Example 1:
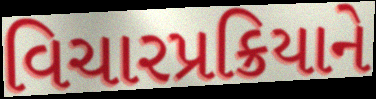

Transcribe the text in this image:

વિચારપ્રક્રિયાને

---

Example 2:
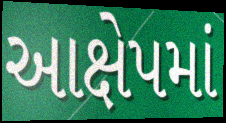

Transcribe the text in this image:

આક્ષેપમાં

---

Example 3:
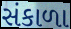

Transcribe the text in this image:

સંકાળા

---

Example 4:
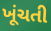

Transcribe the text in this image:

ખૂંચતી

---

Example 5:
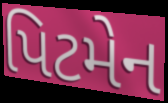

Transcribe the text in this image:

પિટમેન